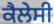
ਕੈਲੇਸੀ